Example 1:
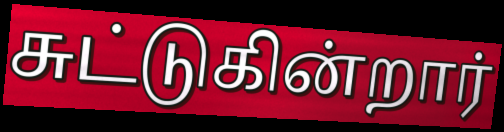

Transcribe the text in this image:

சுட்டுகின்றார்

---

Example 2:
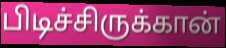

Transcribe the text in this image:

பிடிச்சிருக்கான்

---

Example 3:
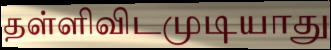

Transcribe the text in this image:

தள்ளிவிடமுடியாது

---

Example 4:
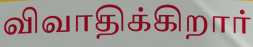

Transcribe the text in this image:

விவாதிக்கிறார்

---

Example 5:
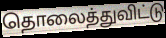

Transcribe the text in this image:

தொலைத்துவிட்டு